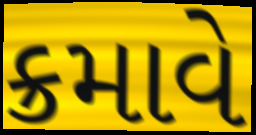
ક્રમાવે